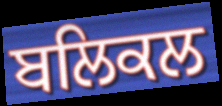
ਬਲਿਕਲ